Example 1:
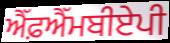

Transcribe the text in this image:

ਐੱਫ਼ਐੱਮਬੀਏਪੀ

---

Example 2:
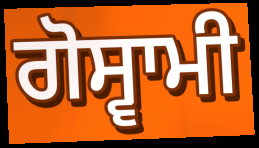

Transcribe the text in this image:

ਗੋਸ੍ਵਾਮੀ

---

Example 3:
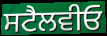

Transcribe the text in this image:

ਸਟੈਲਵੀਓ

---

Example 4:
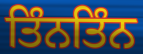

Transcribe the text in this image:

ਤਿੰਨਤਿੰਨ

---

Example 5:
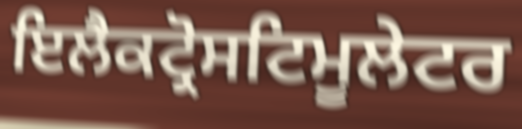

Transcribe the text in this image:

ਇਲੈਕਟ੍ਰੋਸਟਿਮੂਲੇਟਰ